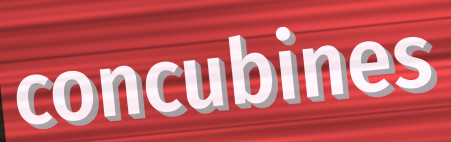
concubines